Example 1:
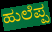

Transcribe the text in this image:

ಹುಲೆಪ್ಪ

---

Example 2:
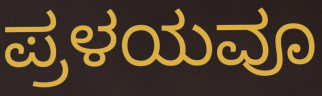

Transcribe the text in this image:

ಪ್ರಳಯವೂ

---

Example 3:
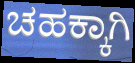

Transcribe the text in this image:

ಚಹಕ್ಕಾಗಿ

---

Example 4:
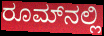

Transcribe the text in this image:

ರೂಮ್‌ನಲ್ಲಿ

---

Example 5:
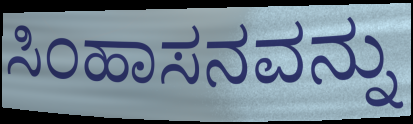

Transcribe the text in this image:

ಸಿಂಹಾಸನವನ್ನು